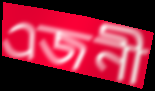
এজনী